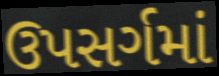
ઉપસર્ગમાં